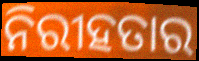
ନିରୀହତାର